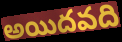
అయిదవది